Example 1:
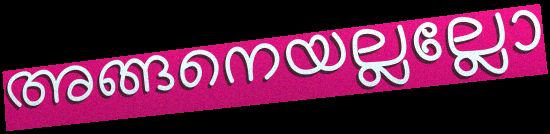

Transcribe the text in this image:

അങ്ങനെയല്ലല്ലോ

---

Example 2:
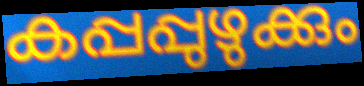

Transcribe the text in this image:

കപ്പപ്പുഴുക്കും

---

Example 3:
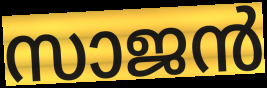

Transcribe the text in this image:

സാജൻ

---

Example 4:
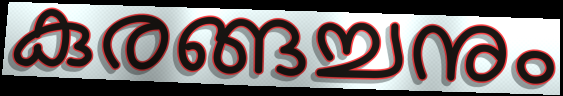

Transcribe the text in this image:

കുരങ്ങച്ചനും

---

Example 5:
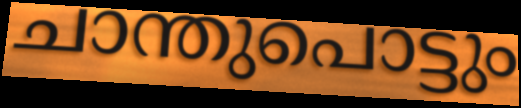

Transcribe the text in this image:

ചാന്തുപൊട്ടും